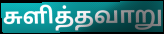
சுளித்தவாறு